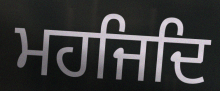
ਮਹਜਿਦਿ